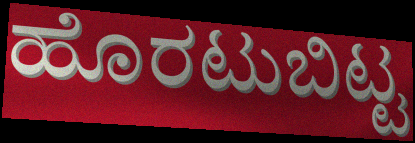
ಹೊರಟುಬಿಟ್ಟ